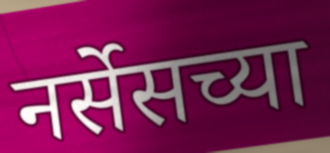
नर्सेसच्या